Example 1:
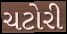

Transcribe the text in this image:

ચટોરી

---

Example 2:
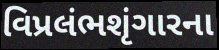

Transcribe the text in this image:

વિપ્રલંભશૃંગારના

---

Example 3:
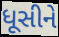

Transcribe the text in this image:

ધૂસીને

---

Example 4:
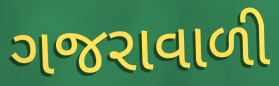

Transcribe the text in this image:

ગજરાવાળી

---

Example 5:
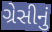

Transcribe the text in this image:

ગ્રેસીનું